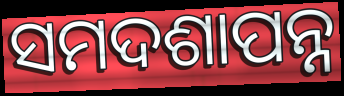
ସମଦଶାପନ୍ନ